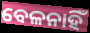
ବେଳନାହିଁ